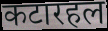
कटारहल